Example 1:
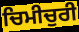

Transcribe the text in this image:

ਚਿਮੀਚੁਰੀ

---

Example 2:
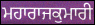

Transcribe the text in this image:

ਮਹਾਰਾਜਕੁਮਾਰੀ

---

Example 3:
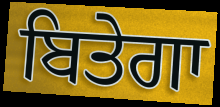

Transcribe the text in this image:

ਬਿਤੇਗਾ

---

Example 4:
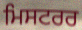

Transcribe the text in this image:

ਮਿਸਟਰਰ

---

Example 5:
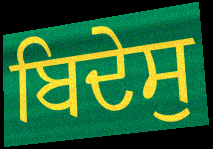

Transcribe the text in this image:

ਬਿਦੇਸੁ